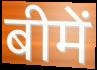
बीमें